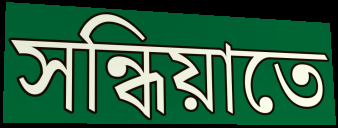
সন্ধিয়াতে